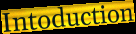
Intoduction